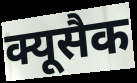
क्यूसैक